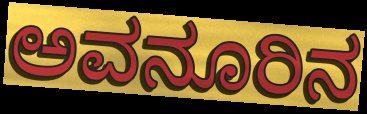
ಅವನೂರಿನ